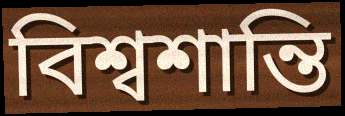
বিশ্বশান্তি